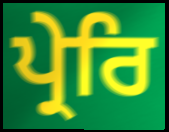
ਪ੍ਰੇਰਿ